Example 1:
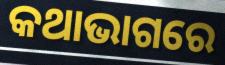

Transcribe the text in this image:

କଥାଭାଗରେ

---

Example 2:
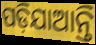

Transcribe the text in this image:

ପଡ଼ିଯାଆନ୍ତି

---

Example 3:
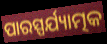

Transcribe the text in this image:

ପାରସ୍ପର୍ଯ୍ୟାତ୍ମକ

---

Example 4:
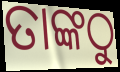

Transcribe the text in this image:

ତାଙ୍କଠୁ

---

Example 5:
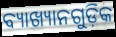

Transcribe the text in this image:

ବ୍ୟାଖ୍ୟାନଗୁଡ଼ିକ